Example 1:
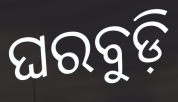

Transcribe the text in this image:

ଘରବୁଡ଼ି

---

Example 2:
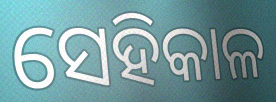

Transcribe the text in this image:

ସେହିକାଳ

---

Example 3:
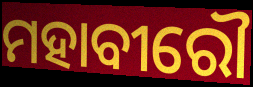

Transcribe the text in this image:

ମହାବୀରୌ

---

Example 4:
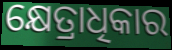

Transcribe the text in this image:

କ୍ଷେତ୍ରାଧିକାର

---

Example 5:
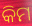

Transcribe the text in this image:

କିମ